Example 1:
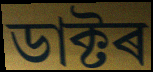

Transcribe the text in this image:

ডাক্টৰ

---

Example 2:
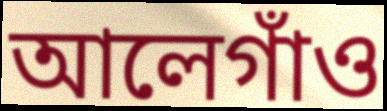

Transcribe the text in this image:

আলেগাঁও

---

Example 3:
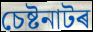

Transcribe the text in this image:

চেষ্টনাটৰ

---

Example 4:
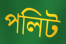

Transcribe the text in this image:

পলিট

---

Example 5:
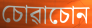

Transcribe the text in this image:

চোৱাচোন